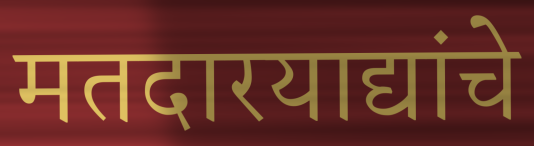
मतदारयाद्यांचे